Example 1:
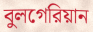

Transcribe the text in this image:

বুলগেরিয়ান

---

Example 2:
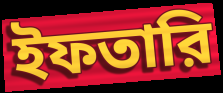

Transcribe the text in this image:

ইফতারি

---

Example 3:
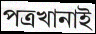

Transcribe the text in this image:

পত্রখানাই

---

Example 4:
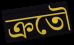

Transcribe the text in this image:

ক্রতৌ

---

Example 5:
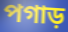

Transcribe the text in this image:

পগাড়